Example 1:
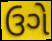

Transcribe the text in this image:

ઉગે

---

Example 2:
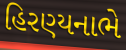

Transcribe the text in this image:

હિરણ્યનાભે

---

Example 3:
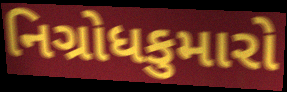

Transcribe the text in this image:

નિગ્રોધકુમારો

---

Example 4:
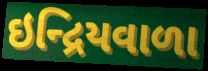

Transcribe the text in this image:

ઇન્દ્રિયવાળા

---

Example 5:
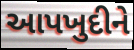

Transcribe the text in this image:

આપખુદીને